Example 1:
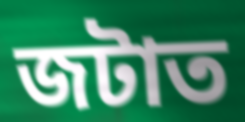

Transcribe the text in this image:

জটাত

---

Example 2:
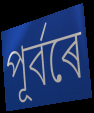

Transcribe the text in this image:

পূৰ্বৰে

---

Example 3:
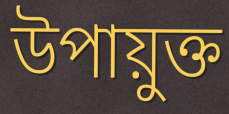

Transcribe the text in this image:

উপায়ুক্ত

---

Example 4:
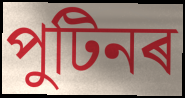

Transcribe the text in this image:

পুটিনৰ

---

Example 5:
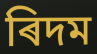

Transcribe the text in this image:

ৰিদম